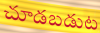
చూడబడుట